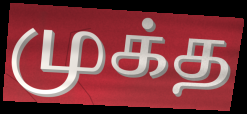
முக்த